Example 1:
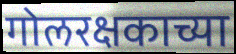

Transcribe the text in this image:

गोलरक्षकाच्या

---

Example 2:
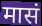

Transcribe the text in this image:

मासं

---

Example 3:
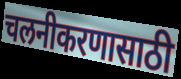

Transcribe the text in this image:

चलनीकरणासाठी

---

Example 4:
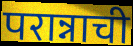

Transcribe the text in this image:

परान्नाची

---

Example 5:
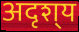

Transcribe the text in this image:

अदृश्य